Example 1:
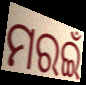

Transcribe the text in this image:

ମରଇଁ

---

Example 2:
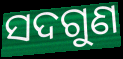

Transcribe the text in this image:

ସଦଗୁଣ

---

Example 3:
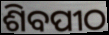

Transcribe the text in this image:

ଶିବପୀଠ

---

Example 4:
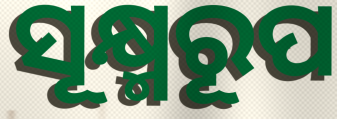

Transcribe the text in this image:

ସୂକ୍ଷ୍ମରୂପ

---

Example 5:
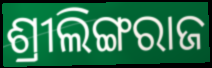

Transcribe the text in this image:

ଶ୍ରୀଲିଙ୍ଗରାଜ